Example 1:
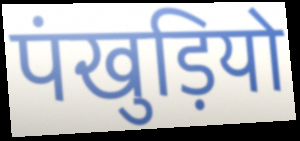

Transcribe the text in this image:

पंखुड़ियो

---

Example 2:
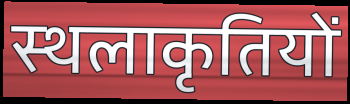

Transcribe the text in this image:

स्थलाकृतियों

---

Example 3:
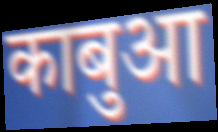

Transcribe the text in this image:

काबुआ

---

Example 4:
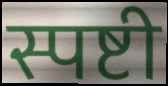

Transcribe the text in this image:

स्पष्टी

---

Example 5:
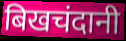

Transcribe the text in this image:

बिखचंदानी